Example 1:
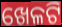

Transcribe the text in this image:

ଖେଳଟି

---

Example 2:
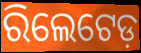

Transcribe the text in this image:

ରିଲେଟେଡ଼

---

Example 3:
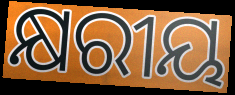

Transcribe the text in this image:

କ୍ଷରୀୟ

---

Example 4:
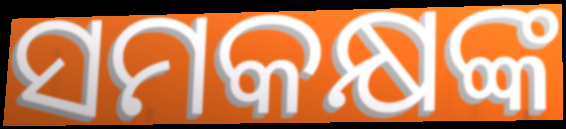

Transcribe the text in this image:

ସମକକ୍ଷଙ୍କ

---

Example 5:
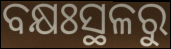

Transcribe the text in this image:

ବକ୍ଷଃସ୍ଥଳରୁ